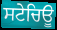
ਸਟੇਚਿਊ